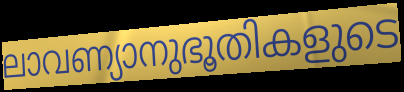
ലാവണ്യാനുഭൂതികളുടെ